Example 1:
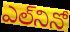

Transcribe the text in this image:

ఎల్‌నినో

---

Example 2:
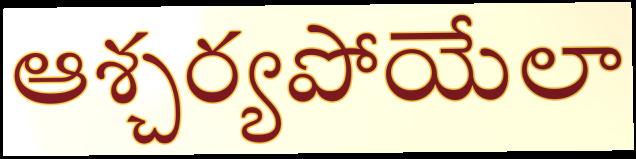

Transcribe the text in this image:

ఆశ్చర్యపోయేలా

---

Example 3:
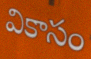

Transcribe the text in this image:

వికాసం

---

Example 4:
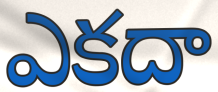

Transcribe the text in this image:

ఎకదా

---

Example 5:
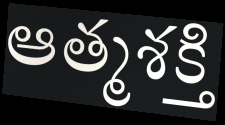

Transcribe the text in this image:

ఆత్మశక్తి